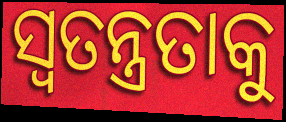
ସ୍ୱତନ୍ତ୍ରତାକୁ